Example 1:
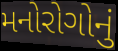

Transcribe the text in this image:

મનોરોગોનું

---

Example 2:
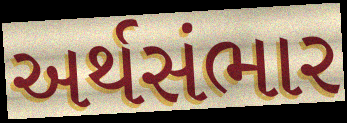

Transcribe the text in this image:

અર્થસંભાર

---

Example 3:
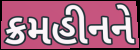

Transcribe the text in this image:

ક્રમહીનને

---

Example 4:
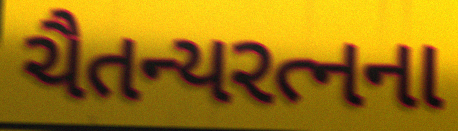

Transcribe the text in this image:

ચૈતન્યરત્નના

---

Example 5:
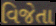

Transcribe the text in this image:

વિજેતા